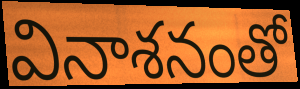
వినాశనంతో